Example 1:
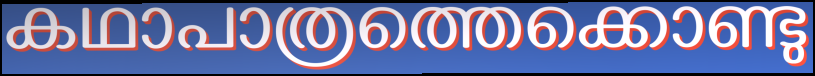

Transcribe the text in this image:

കഥാപാത്രത്തെക്കൊണ്ടു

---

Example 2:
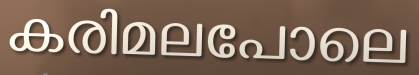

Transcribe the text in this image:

കരിമലപോലെ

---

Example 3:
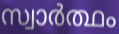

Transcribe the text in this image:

സ്വാർത്ഥം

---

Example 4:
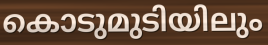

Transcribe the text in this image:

കൊടുമുടിയിലും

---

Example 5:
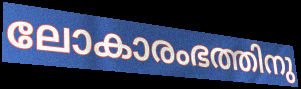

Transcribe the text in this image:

ലോകാരംഭത്തിനു